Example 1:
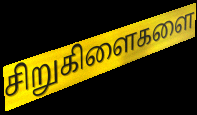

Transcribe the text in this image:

சிறுகிளைகளை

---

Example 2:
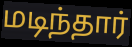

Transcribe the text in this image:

மடிந்தார்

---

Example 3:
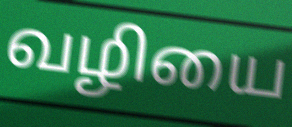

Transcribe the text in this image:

வழியை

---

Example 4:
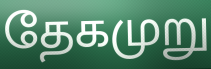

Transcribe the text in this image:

தேகமுறு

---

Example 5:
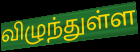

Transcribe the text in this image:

விழுந்துள்ள